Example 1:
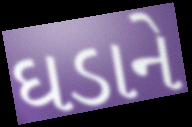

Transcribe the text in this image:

ઘડાને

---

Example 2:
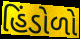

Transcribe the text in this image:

હિંડોળો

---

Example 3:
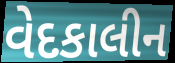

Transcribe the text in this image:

વેદકાલીન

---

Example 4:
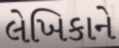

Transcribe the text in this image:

લેખિકાને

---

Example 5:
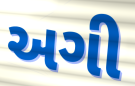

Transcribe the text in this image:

અગી